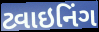
ટ્વાઇનિંગ